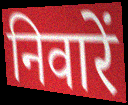
निवारें